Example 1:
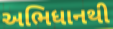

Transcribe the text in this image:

અભિધાનથી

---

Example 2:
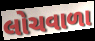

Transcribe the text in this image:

લોચવાળા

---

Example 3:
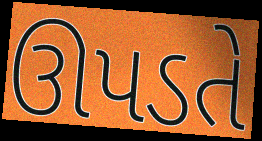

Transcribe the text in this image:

ઊપડતે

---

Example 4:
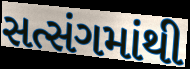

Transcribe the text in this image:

સત્સંગમાંથી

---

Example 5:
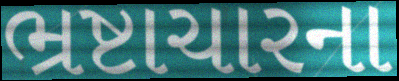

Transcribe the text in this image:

ભ્રષ્ટાચારના